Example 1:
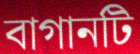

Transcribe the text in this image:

বাগানটি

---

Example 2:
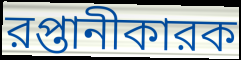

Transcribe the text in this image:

রপ্তানীকারক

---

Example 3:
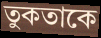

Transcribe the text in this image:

তুকতাকে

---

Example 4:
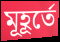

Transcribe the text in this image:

মূহূর্তে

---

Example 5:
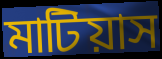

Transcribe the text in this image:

মাটিয়াস